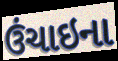
ઉંચાઇના